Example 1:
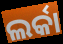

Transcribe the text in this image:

ଲର୍କା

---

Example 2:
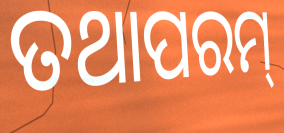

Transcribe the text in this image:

ତଥାପରମ୍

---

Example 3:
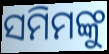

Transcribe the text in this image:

ସମିମଙ୍କୁ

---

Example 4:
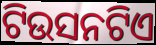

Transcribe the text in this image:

ଟିଉସନଟିଏ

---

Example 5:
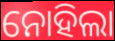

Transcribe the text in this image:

ନୋହିଲା